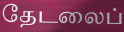
தேடலைப்